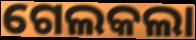
ଗେଲକଲା